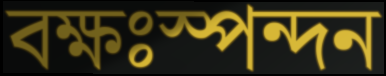
বক্ষঃস্পন্দন